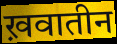
ख़वातीन